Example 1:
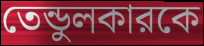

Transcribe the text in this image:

তেন্ডুলকারকে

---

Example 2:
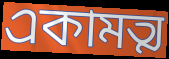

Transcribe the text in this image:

একামত্ম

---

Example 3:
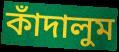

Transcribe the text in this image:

কাঁদালুম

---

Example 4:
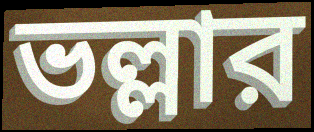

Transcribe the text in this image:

ভল্লার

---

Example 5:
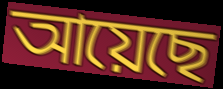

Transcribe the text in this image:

আয়েছে